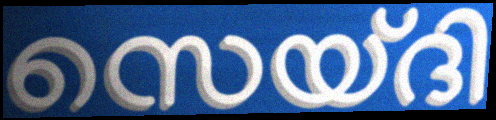
സെയ്ദി